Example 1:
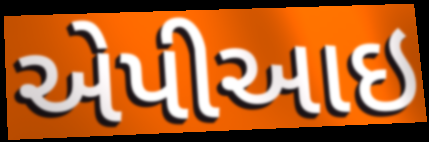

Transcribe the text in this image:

એપીઆઇ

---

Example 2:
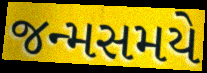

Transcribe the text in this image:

જન્મસમયે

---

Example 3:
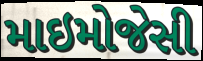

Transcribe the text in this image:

માઇમોજેસી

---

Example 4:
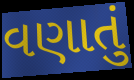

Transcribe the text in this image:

વણાતું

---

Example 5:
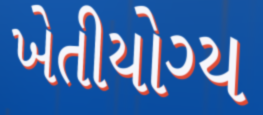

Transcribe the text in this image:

ખેતીયોગ્ય